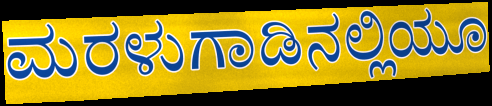
ಮರಳುಗಾಡಿನಲ್ಲಿಯೂ